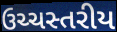
ઉચ્ચસ્તરીય